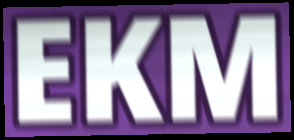
EKM